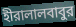
হীরালালবাবুর